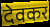
देवकर